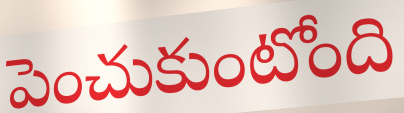
పెంచుకుంటోంది